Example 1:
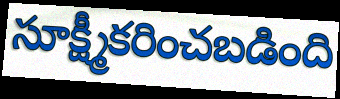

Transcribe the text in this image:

సూక్ష్మీకరించబడింది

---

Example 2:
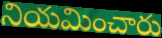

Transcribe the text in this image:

నియమించారు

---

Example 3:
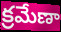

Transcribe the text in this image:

క్రమేణా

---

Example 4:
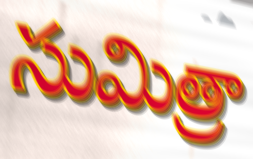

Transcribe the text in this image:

సుమిత్రా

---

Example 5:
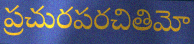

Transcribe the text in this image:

ప్రచురపరచితిమో